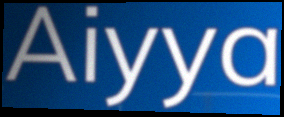
Aiyya